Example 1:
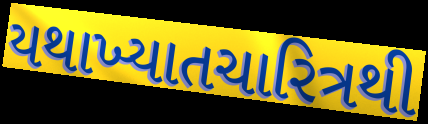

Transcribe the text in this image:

યથાખ્યાતચારિત્રથી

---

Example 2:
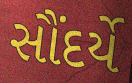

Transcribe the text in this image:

સૌંદર્યે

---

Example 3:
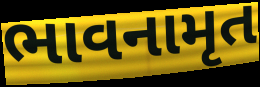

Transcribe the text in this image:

ભાવનામૃત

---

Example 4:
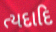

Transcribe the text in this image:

ત્યદાદિ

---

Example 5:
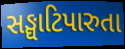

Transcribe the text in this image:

સઙ્ઘાટિપારુતા